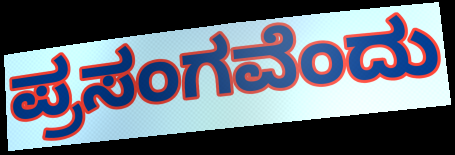
ಪ್ರಸಂಗವೆಂದು